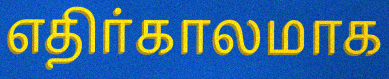
எதிர்காலமாக